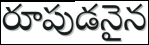
రూపుడనైన